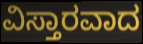
ವಿಸ್ತಾರವಾದ